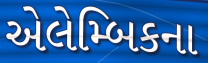
એલેમ્બિકના